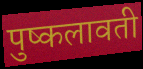
पुष्कलावती